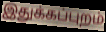
இதுக்கப்புறம்